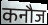
कनौज